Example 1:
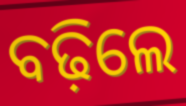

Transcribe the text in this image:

ବଢ଼ିଲେ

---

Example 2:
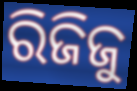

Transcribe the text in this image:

ରିଜିଜୁ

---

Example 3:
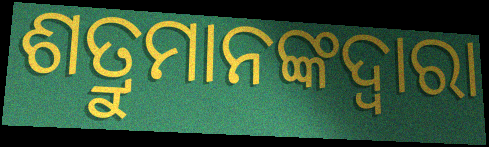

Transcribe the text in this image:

ଶତ୍ରୁମାନଙ୍କଦ୍ଵାରା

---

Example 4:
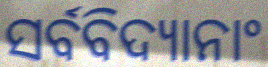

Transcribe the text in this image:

ସର୍ବବିଦ୍ୟାନାଂ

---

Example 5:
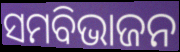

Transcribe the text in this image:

ସମବିଭାଜନ